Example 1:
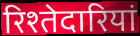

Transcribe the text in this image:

रिश्तेदारियां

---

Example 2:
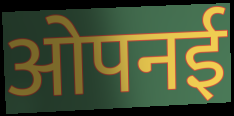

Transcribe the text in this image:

ओपनई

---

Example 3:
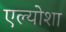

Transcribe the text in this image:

एल्योशा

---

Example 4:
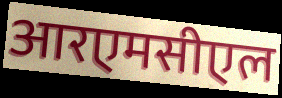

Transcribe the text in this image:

आरएमसीएल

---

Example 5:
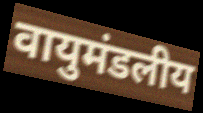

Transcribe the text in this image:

वायुमंडलीय